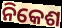
ନିକେଶ